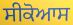
ਸੀਕੋਆਸ